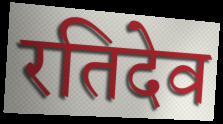
रतिदेव